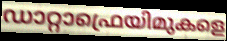
ഡാറ്റാഫ്രെയിമുകളെ